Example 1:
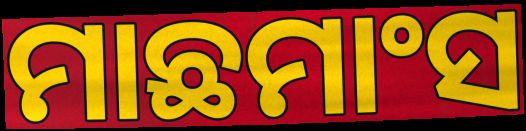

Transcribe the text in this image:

ମାଛମାଂସ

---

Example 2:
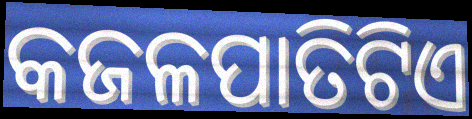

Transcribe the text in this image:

କଜଳପାତିଟିଏ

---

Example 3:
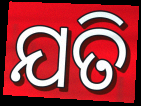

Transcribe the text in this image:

ଯତି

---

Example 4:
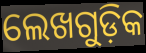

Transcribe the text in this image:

ଲେଖଗୁଡ଼ିକ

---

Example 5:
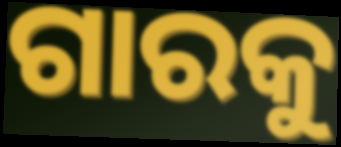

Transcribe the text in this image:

ଗାରକୁ